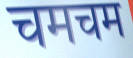
चमचम